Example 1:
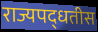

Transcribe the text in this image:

राज्यपद्धतीस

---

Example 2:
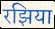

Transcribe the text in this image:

रझिया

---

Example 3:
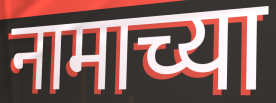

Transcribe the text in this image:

नामाच्या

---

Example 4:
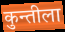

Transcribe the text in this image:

कुन्तीला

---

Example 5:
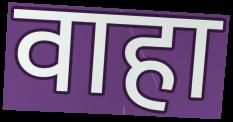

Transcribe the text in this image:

वाहा